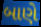
બાણે